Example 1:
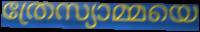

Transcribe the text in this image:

ത്രേസ്യാമ്മയെ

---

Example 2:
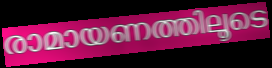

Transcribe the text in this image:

രാമായണത്തിലൂടെ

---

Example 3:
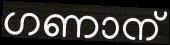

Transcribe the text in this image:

ഗണാന്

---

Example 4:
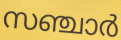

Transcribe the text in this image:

സഞ്ചാർ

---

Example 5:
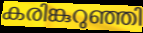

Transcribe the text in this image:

കരിങ്കുറുഞ്ഞി